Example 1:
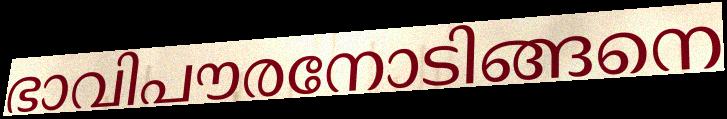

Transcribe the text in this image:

ഭാവിപൗരനോടിങ്ങനെ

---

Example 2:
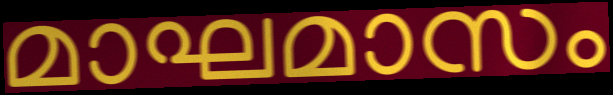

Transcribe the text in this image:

മാഘമാസം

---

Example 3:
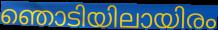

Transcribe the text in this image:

ഞൊടിയിലായിരം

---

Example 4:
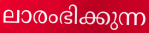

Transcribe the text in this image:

ലാരംഭിക്കുന്ന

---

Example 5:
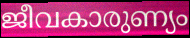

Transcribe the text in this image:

ജീവകാരുണ്യം